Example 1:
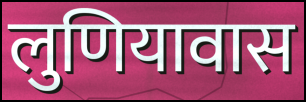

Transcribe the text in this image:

लुणियावास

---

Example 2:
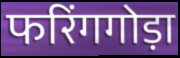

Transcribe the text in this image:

फरिंगगोड़ा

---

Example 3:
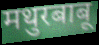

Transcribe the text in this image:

मथुरबाबू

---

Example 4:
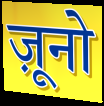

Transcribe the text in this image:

ज़ूनो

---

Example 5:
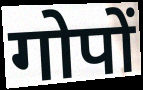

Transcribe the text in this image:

गोपों